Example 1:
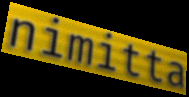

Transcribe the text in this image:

nimitta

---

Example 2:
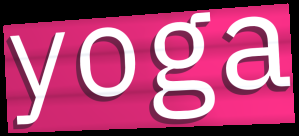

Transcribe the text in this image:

yoga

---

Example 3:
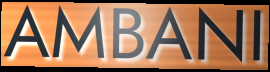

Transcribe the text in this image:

AMBANI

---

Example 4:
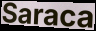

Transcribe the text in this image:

Saraca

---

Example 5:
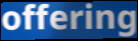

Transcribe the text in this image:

offering